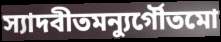
স্যাদবীতমন্যুর্গৌতমো